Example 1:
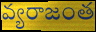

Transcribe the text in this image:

వ్యరాజంత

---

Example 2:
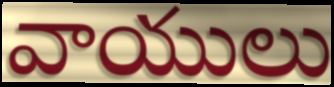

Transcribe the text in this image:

వాయులు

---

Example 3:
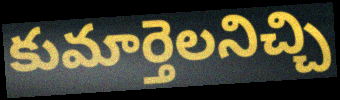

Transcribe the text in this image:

కుమార్తెలనిచ్చి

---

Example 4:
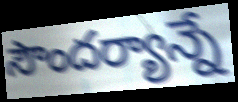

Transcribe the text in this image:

సౌందర్యాన్నే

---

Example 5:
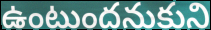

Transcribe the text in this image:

ఉంటుందనుకుని